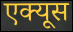
एक्यूस